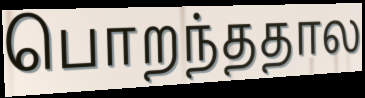
பொறந்ததால